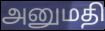
அனுமதி